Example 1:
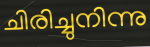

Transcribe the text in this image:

ചിരിച്ചുനിന്നു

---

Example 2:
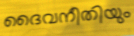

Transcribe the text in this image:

ദൈവനീതിയും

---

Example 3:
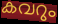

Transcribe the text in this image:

കവറും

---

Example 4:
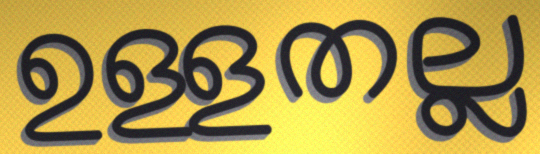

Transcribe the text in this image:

ഉള്ളതല്ല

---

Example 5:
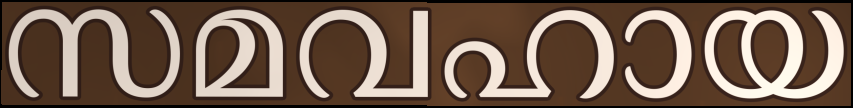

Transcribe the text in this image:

സമവഹായ